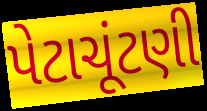
પેટાચૂંટણી